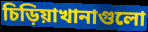
চিড়িয়াখানাগুলো